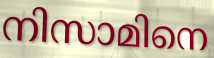
നിസാമിനെ